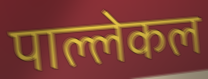
पाल्लेकल